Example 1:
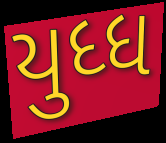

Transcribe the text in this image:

યુધ્ધ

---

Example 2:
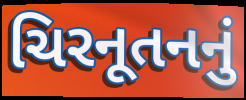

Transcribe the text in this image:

ચિરનૂતનનું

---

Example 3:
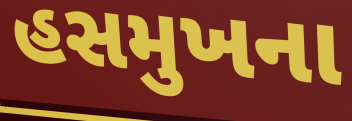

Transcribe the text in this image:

હસમુખના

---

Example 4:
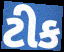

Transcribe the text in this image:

ટીક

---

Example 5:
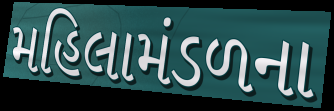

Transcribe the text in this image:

મહિલામંડળના